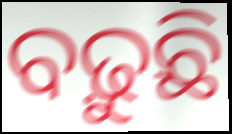
ବଢ଼ୁଛି